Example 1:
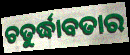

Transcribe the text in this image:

ଚତୁର୍ଦ୍ଧାବତାର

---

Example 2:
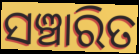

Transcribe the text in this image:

ସଞ୍ଚାରିତ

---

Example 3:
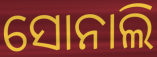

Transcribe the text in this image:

ସୋନାଲି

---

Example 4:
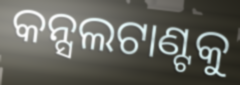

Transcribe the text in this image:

କନ୍ସଲଟାଣ୍ଟକୁ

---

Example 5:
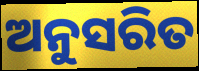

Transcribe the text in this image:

ଅନୁସରିତ